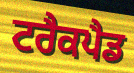
ਟਰੈਕਪੈਡ